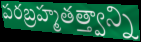
పరబ్రహ్మతత్త్వాన్ని